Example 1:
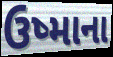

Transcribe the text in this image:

ઉષ્માના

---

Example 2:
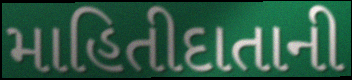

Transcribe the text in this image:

માહિતીદાતાની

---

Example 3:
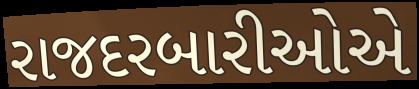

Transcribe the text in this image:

રાજદરબારીઓએ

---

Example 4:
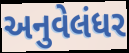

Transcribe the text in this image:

અનુવેલંધર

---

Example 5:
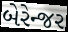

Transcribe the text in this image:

બેરેન્જર